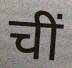
चीं